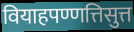
वियाहपण्णत्तिसुत्त